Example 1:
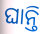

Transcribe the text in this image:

ଘାନ୍ତି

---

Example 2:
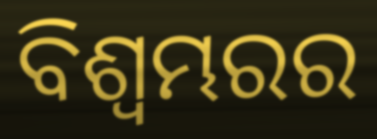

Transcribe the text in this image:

ବିଶ୍ଵମ୍ଭରର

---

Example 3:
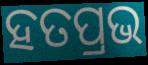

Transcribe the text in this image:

ହତପ୍ରଭ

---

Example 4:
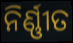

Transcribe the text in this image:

ନିର୍ଣ୍ଣୀତ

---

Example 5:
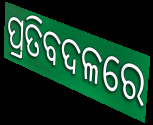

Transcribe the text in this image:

ପ୍ରତିବଦଳରେ